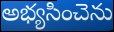
అభ్యసించెను